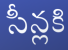
సీన్లకి